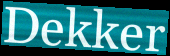
Dekker